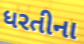
ધરતીના